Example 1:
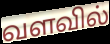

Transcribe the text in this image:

வளவில்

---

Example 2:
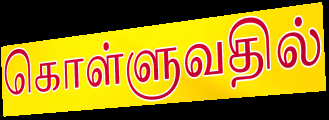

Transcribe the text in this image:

கொள்ளுவதில்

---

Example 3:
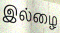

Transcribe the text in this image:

இல்ழை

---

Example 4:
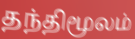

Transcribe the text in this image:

தந்திமூலம்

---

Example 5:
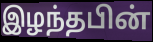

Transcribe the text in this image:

இழந்தபின்